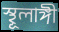
স্থূলাঙ্গী